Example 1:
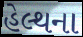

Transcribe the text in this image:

હેલ્થના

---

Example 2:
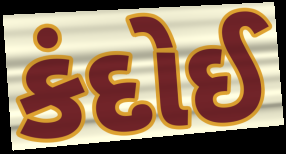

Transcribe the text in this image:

કંદોઈ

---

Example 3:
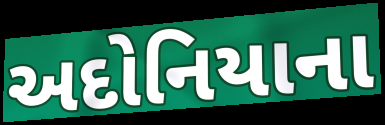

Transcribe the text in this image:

અદોનિયાના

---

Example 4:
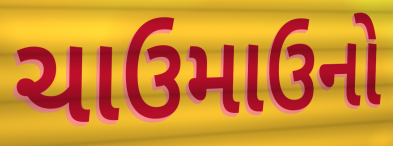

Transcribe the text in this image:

ચાઉમાઉનો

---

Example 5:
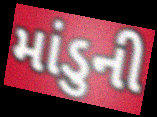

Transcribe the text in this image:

માંડુની